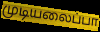
முடியலைப்பா